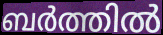
ബർത്തിൽ